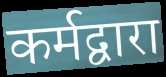
कर्मद्वारा